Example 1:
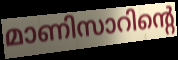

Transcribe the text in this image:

മാണിസാറിന്റെ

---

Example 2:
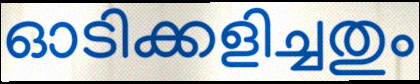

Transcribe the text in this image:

ഓടിക്കളിച്ചതും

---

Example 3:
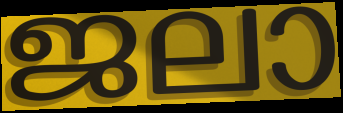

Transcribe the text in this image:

ജലാ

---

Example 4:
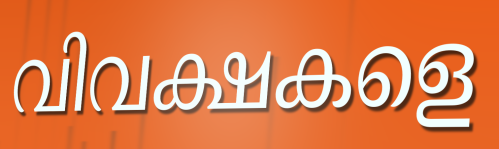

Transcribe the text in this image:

വിവക്ഷകളെ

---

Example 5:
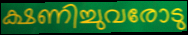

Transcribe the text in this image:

ക്ഷണിച്ചുവരോടു